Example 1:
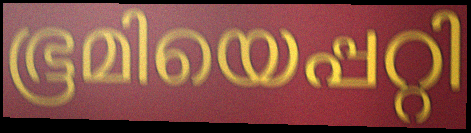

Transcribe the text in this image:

ഭൂമിയെപ്പറ്റി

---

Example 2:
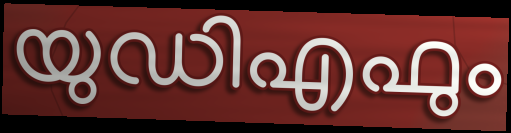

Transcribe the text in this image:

യുഡിഎഫും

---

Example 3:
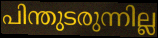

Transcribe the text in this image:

പിന്തുടരുന്നില്ല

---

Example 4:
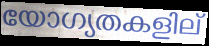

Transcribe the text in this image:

യോഗ്യതകളില്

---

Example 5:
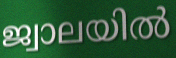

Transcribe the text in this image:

ജ്വാലയിൽ